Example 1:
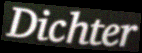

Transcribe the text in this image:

Dichter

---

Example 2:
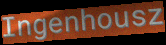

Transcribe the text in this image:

Ingenhousz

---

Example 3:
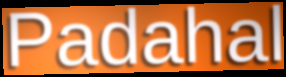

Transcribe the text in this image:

Padahal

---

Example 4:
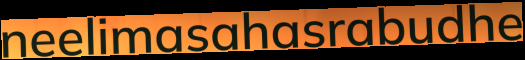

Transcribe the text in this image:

neelimasahasrabudhe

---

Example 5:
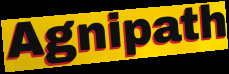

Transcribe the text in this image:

Agnipath